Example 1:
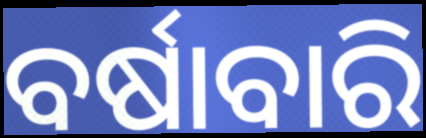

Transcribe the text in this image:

ବର୍ଷାବାରି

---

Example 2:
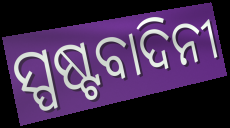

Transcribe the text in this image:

ସ୍ପଷ୍ଟବାଦିନୀ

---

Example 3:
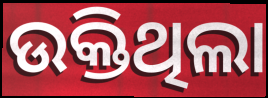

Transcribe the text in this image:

ଉକ୍ତିଥିଲା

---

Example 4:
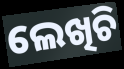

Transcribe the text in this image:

ଲେଖିଚି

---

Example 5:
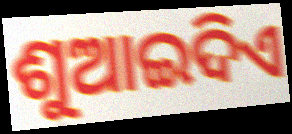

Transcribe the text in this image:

ଶୁଆଇଦିଏ